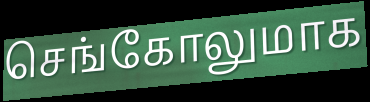
செங்கோலுமாக